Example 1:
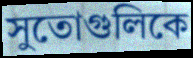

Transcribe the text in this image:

সুতোগুলিকে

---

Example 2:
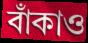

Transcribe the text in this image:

বাঁকাও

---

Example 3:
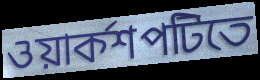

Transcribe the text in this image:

ওয়ার্কশপটিতে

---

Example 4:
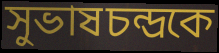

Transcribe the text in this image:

সুভাষচন্দ্রকে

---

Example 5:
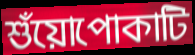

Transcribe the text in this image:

শুঁয়োপোকাটি